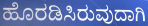
ಹೊರಡಿಸಿರುವುದಾಗಿ